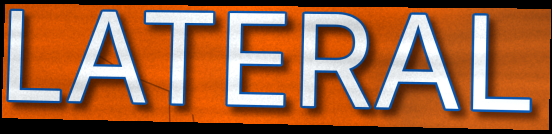
LATERAL